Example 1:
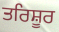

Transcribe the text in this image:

ਤਰਿਸ਼ੂਰ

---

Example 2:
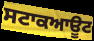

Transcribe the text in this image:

ਸਟਾਕਆਊਟ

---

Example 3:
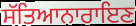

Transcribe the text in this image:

ਸੱਤਿਆਨਾਰਾਇਣ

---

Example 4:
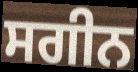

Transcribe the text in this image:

ਸਗੀਨ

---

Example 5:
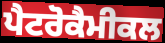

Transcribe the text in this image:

ਪੈਟਰੋਕੈਮੀਕਲ